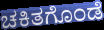
ಚಕಿತಗೊಂಡೆ